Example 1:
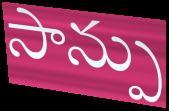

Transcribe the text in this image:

సాన్పు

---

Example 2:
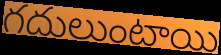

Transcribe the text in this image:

గదులుంటాయి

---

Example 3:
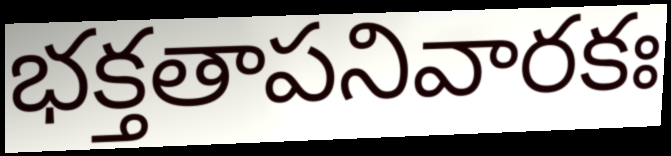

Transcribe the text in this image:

భక్తతాపనివారకః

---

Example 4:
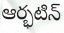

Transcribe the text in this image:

ఆర్భటిన్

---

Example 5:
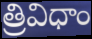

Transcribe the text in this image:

త్రివిధాం